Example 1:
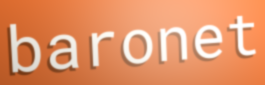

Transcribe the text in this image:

baronet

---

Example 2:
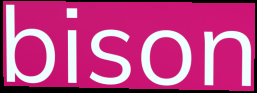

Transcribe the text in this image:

bison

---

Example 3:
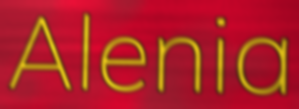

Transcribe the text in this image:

Alenia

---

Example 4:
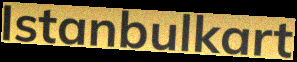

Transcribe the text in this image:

Istanbulkart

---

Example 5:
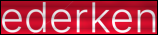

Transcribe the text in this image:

ederken